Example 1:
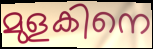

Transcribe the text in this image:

മുളകിനെ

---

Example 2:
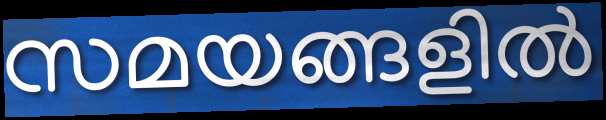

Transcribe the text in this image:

സമയങ്ങളിൽ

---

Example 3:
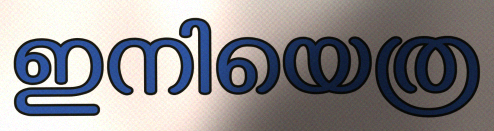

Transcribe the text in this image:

ഇനിയെത്ര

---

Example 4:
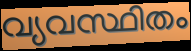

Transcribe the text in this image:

വ്യവസ്ഥിതം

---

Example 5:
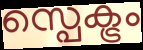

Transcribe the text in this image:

സ്പെക്ട്രം